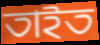
তাইত